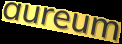
aureum